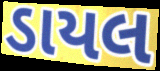
ડાયલ